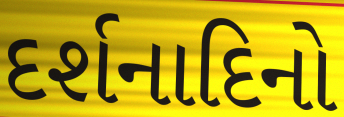
દર્શનાદિનો